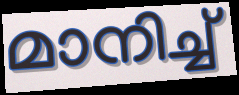
മാനിച്ച്